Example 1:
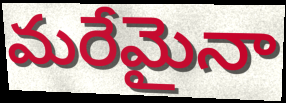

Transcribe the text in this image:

మరేమైనా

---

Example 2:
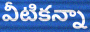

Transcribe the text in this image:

వీటికన్నా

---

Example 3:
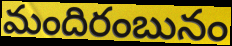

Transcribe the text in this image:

మందిరంబునం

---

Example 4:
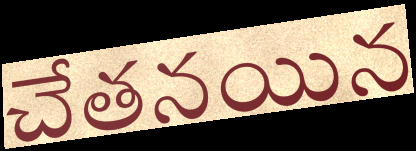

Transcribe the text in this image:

చేతనయిన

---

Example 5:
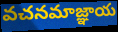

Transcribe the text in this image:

వచనమాజ్ఞాయ